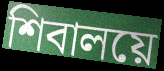
শিবালয়ে